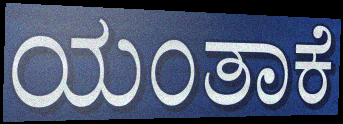
ಯಂತಾಕೆ